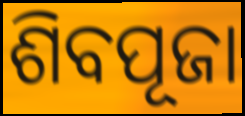
ଶିବପୂଜା